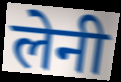
लेनी